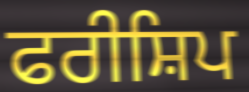
ਫਰੀਸ਼ਿਪ